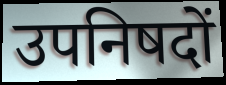
उपनिषदों